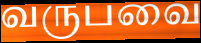
வருபவை